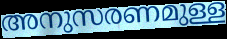
അനുസരണമുള്ള